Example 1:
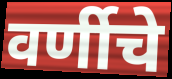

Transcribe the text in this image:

वर्णीचे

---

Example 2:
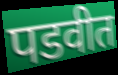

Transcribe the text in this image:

पडवीत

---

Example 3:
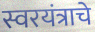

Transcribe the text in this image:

स्वरयंत्राचे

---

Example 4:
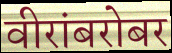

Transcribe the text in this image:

वीरांबरोबर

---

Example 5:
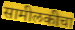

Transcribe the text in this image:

सामीलकीचा